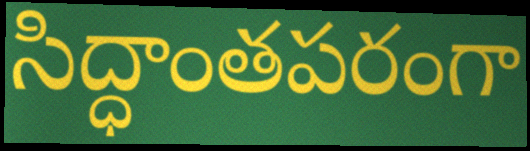
సిద్ధాంతపరంగా